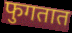
फुगतात